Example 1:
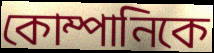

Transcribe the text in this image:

কোম্পানিকে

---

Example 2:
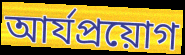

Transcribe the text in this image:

আর্যপ্রয়োগ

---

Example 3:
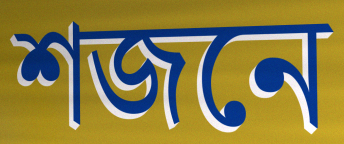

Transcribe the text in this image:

শজনে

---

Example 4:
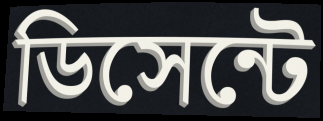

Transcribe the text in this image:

ডিসেন্টে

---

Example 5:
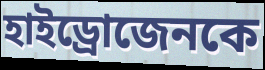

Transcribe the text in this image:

হাইড্রোজেনকে